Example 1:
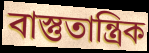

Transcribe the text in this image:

বাস্তুতান্ত্রিক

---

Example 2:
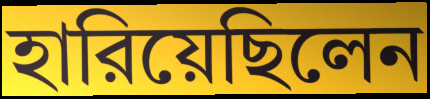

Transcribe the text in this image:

হারিয়েছিলেন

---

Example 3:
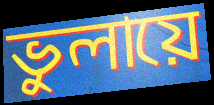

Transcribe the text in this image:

ভুলায়ে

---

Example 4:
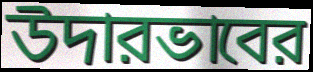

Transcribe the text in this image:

উদারভাবের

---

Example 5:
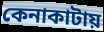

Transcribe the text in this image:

কেনাকাটায়